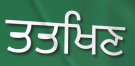
ਤਤਖਿਣ